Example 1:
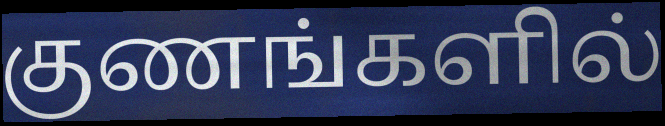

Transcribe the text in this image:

குணங்களில்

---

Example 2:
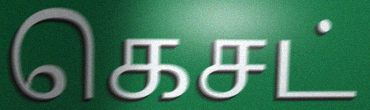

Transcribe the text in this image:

கெசட்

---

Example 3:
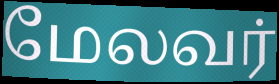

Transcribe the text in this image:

மேலவர்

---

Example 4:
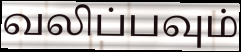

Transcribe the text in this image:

வலிப்பவும்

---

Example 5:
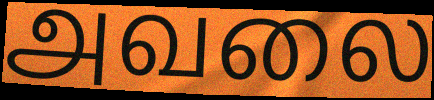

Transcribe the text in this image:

அவலை